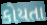
કોયતા